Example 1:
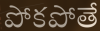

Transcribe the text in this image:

పోకపోతే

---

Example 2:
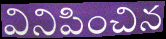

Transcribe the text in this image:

వినిపించిన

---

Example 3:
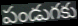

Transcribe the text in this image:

పండుగకు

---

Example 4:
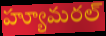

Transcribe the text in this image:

హ్యూమరల్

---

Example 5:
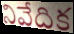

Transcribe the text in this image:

నివేదిక